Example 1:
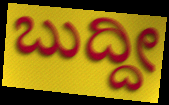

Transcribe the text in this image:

ಬುದ್ದೀ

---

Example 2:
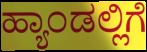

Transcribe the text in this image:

ಹ್ಯಾಂಡಲ್ಲಿಗೆ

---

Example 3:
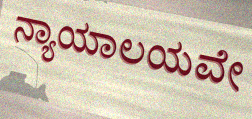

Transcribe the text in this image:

ನ್ಯಾಯಾಲಯವೇ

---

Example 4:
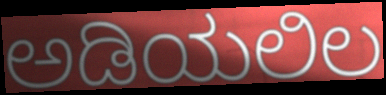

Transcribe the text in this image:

ಅಡಿಯಲಿಲ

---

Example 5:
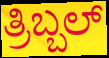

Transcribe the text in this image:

ತ್ರಿಬ್ಬಲ್